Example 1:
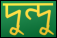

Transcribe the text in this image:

দুন্দু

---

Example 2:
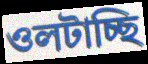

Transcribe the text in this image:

ওলটাচ্ছি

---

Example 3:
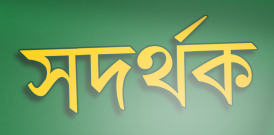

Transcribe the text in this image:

সদর্থক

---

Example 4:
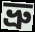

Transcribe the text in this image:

ভ্রু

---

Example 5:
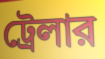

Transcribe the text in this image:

ট্রেলার